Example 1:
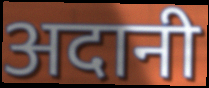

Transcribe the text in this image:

अदानी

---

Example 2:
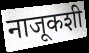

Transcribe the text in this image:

नाजूकशी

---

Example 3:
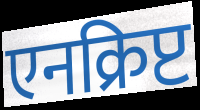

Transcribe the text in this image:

एनक्रिप्ट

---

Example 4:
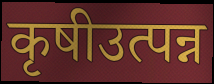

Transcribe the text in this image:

कृषीउत्पन्न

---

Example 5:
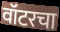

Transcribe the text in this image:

वॉटरचा